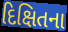
દિક્ષિતના